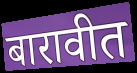
बारावीत